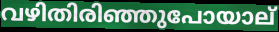
വഴിതിരിഞ്ഞുപോയാല്